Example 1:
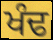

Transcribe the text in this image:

ਖੰਢ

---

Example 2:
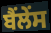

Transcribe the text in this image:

ਬੈਂਲੇਂਸ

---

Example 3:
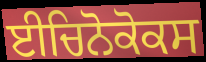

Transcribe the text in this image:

ਈਚਿਨੋਕੋਕਸ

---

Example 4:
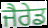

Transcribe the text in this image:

ਜੈਰੇਡ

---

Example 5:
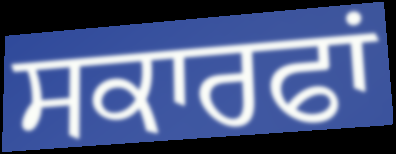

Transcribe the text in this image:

ਸਕਾਰਫਾਂ